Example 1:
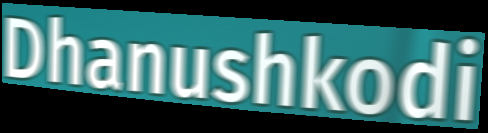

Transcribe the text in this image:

Dhanushkodi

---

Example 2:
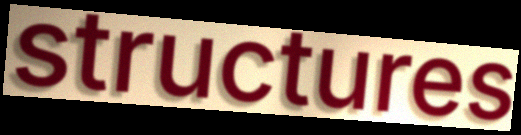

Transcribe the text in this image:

structures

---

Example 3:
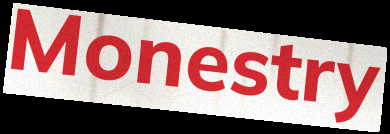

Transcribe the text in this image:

Monestry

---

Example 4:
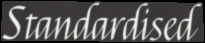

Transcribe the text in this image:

Standardised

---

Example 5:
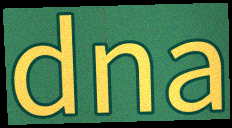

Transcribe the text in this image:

dna